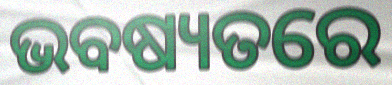
ଭବଷ୍ୟତରେ